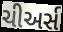
ચીઅર્સ